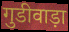
गुडीवाड़ा